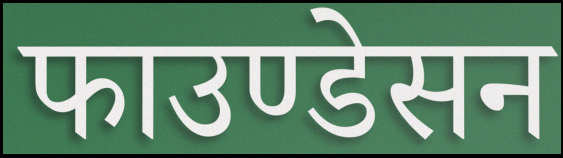
फाउण्डेसन